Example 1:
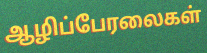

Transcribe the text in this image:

ஆழிப்பேரலைகள்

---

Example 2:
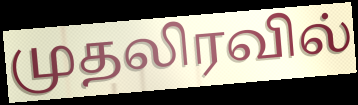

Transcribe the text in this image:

முதலிரவில்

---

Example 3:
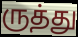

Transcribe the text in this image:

ருத்து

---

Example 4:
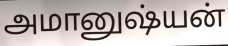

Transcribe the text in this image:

அமானுஷ்யன்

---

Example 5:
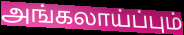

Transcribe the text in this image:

அங்கலாய்ப்பும்